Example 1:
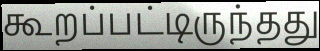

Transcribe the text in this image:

கூறப்பட்டிருந்தது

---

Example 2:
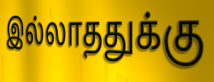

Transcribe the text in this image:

இல்லாததுக்கு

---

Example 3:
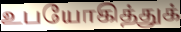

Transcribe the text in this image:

உபயோகித்துக்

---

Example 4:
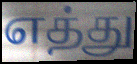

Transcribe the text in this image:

எத்து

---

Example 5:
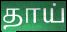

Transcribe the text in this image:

தாய்